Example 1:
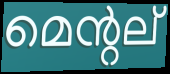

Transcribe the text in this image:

മെന്റല്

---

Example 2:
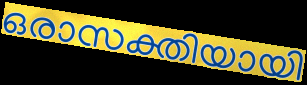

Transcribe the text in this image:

ഒരാസക്തിയായി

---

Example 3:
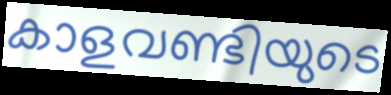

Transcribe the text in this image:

കാളവണ്ടിയുടെ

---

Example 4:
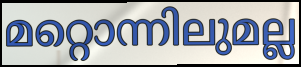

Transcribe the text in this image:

മറ്റൊന്നിലുമല്ല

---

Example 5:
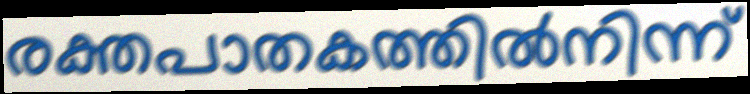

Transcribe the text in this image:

രക്തപാതകത്തിൽനിന്ന്